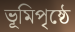
ভূমিপৃষ্ঠে